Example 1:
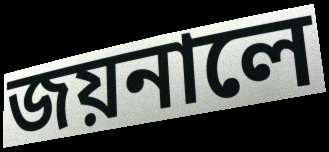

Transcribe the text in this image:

জয়নালে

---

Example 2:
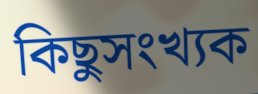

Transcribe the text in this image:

কিছুসংখ্যক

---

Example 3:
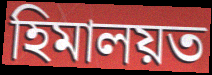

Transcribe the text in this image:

হিমালয়ত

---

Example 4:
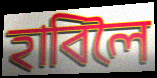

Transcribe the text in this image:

হাবিলৈ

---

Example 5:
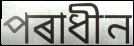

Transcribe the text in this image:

পৰাধীন